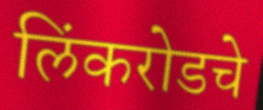
लिंकरोडचे